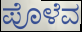
ಪೊಳೆವ